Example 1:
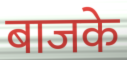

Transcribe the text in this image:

बाजके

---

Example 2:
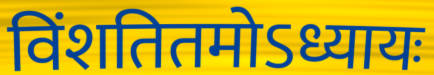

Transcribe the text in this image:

विंशतितमोऽध्यायः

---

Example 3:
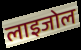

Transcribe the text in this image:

लाइजोल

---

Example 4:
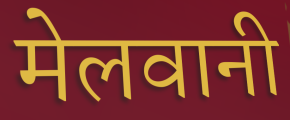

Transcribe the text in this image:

मेलवानी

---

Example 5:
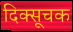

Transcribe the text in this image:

दिक्सूचक